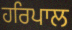
ਹਰਿਪਾਲ